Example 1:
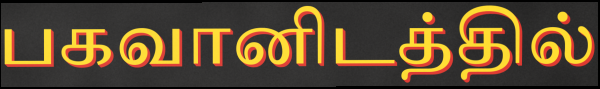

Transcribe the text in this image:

பகவானிடத்தில்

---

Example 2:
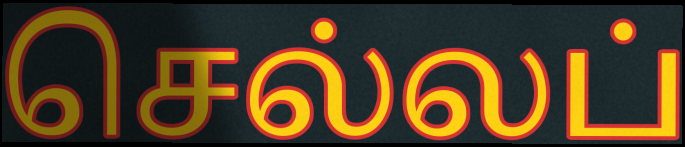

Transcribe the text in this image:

செல்லப்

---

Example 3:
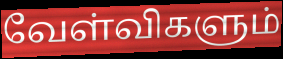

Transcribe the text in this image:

வேள்விகளும்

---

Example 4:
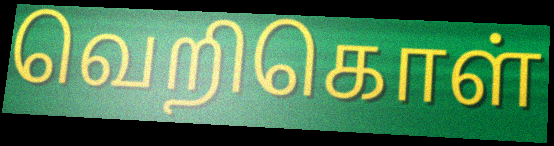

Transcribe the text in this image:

வெறிகொள்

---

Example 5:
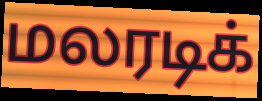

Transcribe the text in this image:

மலரடிக்